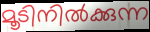
മൂടിനിൽക്കുന്ന